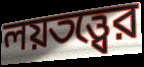
লয়তত্ত্বের